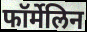
फॉर्मेलिन